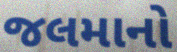
જલમાનો